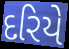
દરિયે